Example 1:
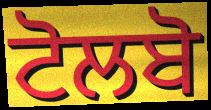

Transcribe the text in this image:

ਟੋਲਬੋ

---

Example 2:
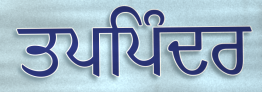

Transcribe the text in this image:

ਤਪਪਿੰਦਰ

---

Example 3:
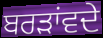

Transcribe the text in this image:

ਬਰੜਾਂਵਦੇ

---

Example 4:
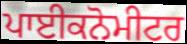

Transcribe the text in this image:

ਪਾਈਕਨੋਮੀਟਰ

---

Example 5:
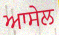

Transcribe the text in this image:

ਆਸੇਲ